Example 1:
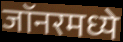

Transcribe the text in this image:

जॉनरमध्ये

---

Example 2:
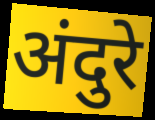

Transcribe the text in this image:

अंदुरे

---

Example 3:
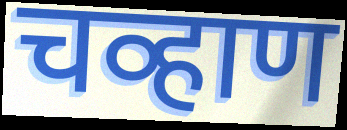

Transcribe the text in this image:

चव्हाण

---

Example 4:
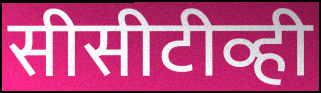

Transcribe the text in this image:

सीसीटीव्ही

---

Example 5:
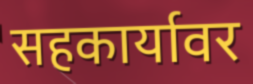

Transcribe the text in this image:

सहकार्यावर